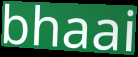
bhaai